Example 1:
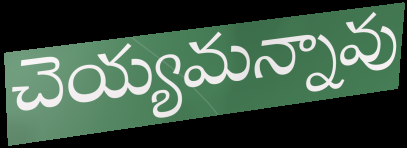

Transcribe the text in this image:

చెయ్యమన్నావు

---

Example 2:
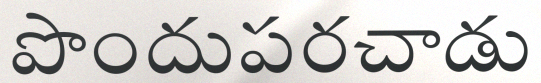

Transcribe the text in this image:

పొందుపరచాడు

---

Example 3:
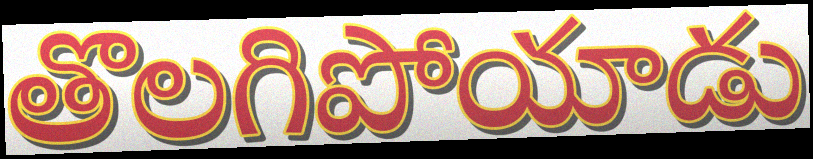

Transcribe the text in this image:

తొలగిపోయాడు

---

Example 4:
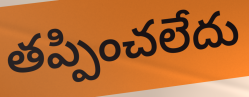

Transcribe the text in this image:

తప్పించలేదు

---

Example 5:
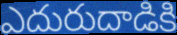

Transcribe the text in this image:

ఎదురుదాడికి